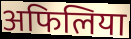
अफिलिया